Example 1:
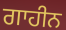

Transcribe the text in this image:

ਗਾਹੀਨ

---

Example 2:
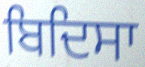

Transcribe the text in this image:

ਬਿਦਿਸਾ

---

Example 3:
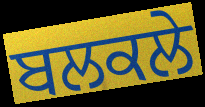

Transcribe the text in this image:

ਬਲਕਲੇ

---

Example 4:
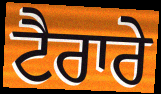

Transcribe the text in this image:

ਟੈਰਾਰੇ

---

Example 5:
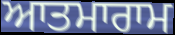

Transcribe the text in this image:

ਆਤਮਾਰਾਮ